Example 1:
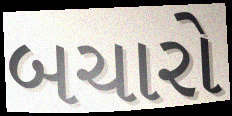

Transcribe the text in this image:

બચારો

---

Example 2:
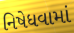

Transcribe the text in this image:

નિષેધવામાં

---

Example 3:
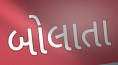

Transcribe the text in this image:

બોલાતા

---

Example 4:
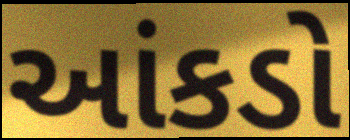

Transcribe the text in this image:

આંકડો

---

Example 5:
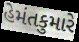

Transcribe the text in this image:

હેમંતકુમારે